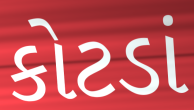
કોટડાં